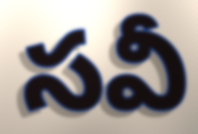
సవీ